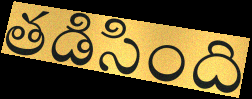
తడిసింది